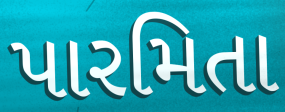
પારમિતા